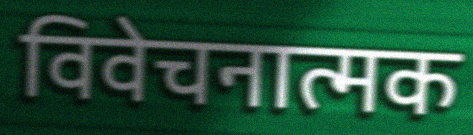
विवेचनात्मक